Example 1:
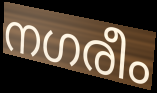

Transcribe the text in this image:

നഗരീം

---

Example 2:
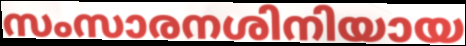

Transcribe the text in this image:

സംസാരനശിനിയായ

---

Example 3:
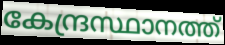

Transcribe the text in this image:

കേന്ദ്രസ്ഥാനത്ത്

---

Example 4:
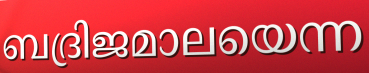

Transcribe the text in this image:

ബദ്രിജമാലയെന്ന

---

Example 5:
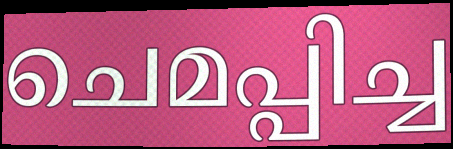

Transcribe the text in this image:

ചെമപ്പിച്ച